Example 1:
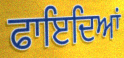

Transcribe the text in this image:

ਫਾਇਦਿਆਂ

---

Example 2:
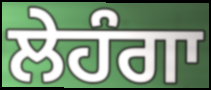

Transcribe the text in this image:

ਲੇਹੰਗਾ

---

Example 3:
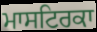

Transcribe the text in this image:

ਮਾਸਟਿਰਕਾ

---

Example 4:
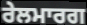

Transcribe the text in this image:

ਰੇਲਮਾਰਗ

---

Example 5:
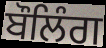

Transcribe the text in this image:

ਬੌਲਿੰਗ